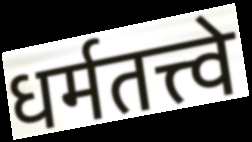
धर्मतत्त्वे